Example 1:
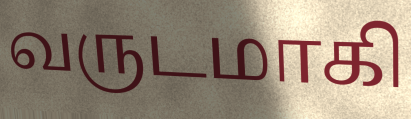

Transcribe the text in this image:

வருடமாகி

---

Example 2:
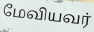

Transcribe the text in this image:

மேவியவர்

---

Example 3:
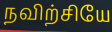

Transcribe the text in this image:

நவிற்சியே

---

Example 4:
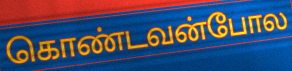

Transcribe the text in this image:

கொண்டவன்போல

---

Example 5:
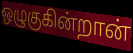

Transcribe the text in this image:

ஒழுகுகின்றான்